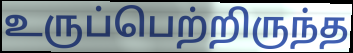
உருப்பெற்றிருந்த